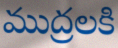
ముద్రలకి